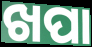
ଖପା